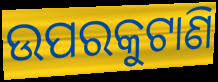
ଉପରକୁଟାଣି